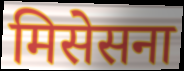
मिसेसना